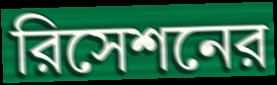
রিসেশনের